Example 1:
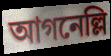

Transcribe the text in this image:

আগনেল্লি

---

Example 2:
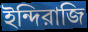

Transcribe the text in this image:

ইন্দিরাজি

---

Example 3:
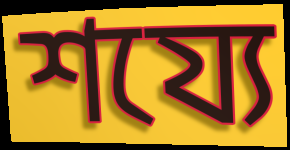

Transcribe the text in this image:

শয্যে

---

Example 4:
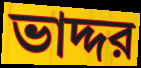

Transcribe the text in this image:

ভাদ্দর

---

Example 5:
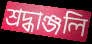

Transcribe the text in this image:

শ্রদ্ধাঞ্জলি